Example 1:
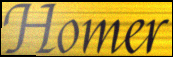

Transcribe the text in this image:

Homer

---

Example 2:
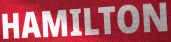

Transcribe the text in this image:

HAMILTON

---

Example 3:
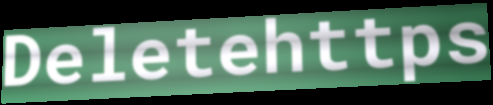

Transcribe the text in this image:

Deletehttps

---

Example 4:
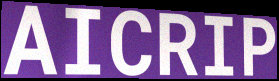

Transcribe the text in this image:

AICRIP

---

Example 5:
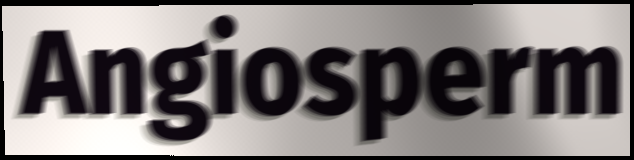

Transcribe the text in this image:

Angiosperm